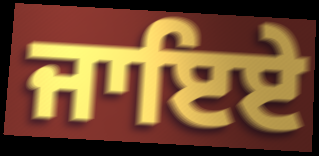
ਜਾਇਏ